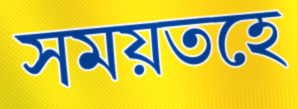
সময়তহে